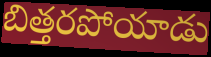
బిత్తరపోయాడు